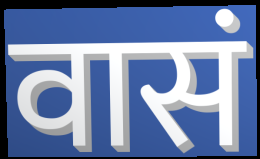
वासं